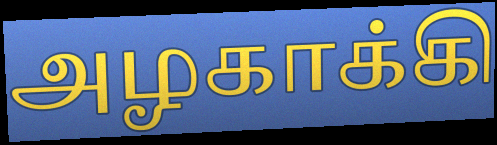
அழகாக்கி